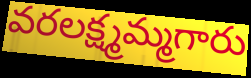
వరలక్ష్మమ్మగారు